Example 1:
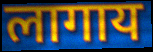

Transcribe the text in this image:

लागाय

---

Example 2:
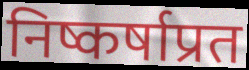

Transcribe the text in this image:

निष्कर्षाप्रत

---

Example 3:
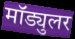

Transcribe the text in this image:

मॉड्युलर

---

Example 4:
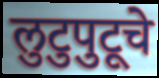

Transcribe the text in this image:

लुटुपुटूचे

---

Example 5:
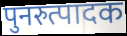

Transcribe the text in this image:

पुनरुत्पादक